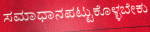
ಸಮಾಧಾನಪಟ್ಟುಕೊಳ್ಳಬೇಕು